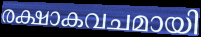
രക്ഷാകവചമായി